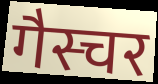
गैस्चर